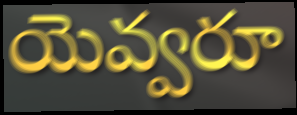
యెవ్వరూ